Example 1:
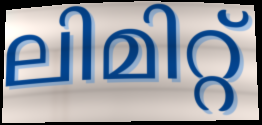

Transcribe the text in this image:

ലിമിറ്റ്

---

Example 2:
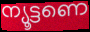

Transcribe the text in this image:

ന്യൂട്ടണെ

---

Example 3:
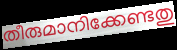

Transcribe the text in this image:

തീരുമാനിക്കേണ്ടതു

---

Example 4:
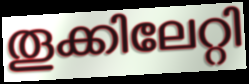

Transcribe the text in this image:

തൂക്കിലേറ്റി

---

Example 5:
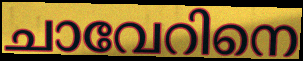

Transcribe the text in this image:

ചാവേറിനെ